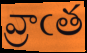
వ్రాఁత